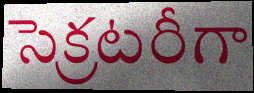
సెక్రటరీగా